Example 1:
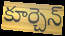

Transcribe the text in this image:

కూర్చెన్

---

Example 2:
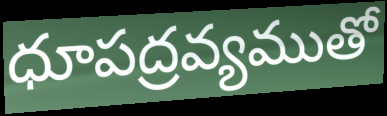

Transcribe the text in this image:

ధూపద్రవ్యముతో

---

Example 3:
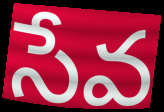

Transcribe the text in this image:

సేవ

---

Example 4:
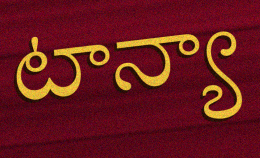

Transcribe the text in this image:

టాన్యా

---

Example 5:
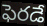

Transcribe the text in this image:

ఫెరడే